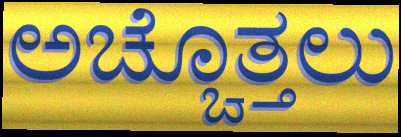
ಅಚ್ಚೊತ್ತಲು